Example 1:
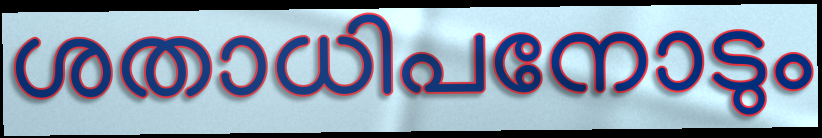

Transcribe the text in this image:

ശതാധിപനോടും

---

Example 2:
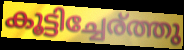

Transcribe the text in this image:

കൂട്ടിച്ചേര്ത്തു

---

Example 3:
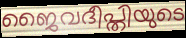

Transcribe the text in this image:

ജൈവദീപ്തിയുടെ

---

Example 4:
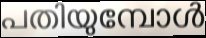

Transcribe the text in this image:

പതിയുമ്പോൾ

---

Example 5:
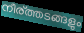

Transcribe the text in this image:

നീര്ത്തടങ്ങളും